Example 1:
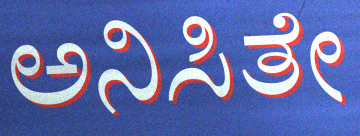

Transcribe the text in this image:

ಅನಿಸಿತೇ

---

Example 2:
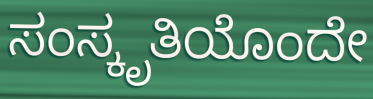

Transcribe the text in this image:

ಸಂಸ್ಕೃತಿಯೊಂದೇ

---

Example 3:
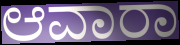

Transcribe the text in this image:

ಆವಾರಾ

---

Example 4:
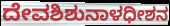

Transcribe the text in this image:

ದೇವಶಿಶುನಾಳಧೀಶನ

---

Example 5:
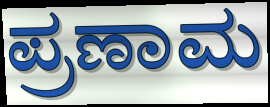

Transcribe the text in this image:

ಪ್ರಣಾಮ